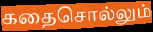
கதைசொல்லும்